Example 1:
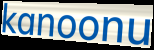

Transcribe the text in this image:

kanoonu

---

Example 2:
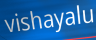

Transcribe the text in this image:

vishayalu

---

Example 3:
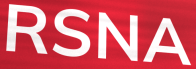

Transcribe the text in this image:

RSNA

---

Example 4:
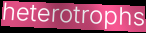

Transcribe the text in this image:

heterotrophs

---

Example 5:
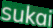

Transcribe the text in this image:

sukai